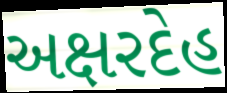
અક્ષરદેહ